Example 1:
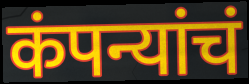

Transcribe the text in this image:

कंपन्यांचं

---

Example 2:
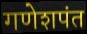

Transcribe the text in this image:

गणेशपंत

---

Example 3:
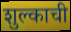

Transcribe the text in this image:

शुल्काची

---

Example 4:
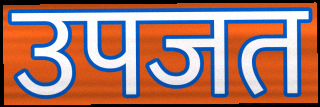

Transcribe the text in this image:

उपजत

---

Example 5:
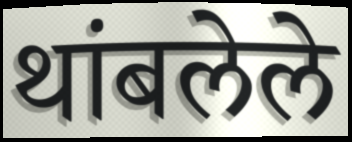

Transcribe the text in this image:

थांबलेले